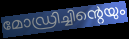
മോഡ്രിച്ചിന്റെയും